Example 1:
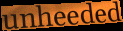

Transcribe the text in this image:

unheeded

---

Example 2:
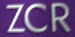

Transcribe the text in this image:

ZCR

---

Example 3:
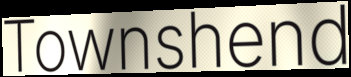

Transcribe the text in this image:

Townshend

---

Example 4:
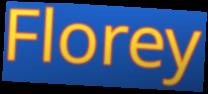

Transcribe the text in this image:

Florey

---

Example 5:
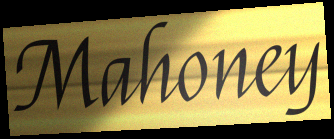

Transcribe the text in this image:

Mahoney